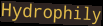
Hydrophily